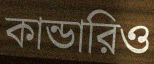
কান্ডারিও